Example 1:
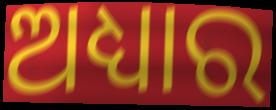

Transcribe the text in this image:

ଅଧ୍ୟାର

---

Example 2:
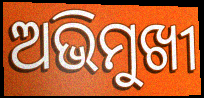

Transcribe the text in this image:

ଅଭିମୁଖୀ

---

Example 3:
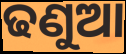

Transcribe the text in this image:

ଢଣୁଆ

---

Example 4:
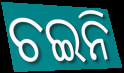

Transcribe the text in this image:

ଚଇନି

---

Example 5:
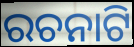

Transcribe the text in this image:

ରଚନାଟି